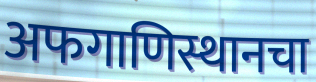
अफगाणिस्थानचा